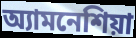
অ্যামনেশিয়া